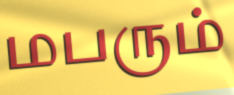
மபரும்